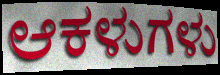
ಆಕಳುಗಳು